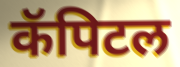
कॅपिटल